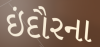
ઇંદૌરના